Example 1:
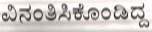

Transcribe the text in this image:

ವಿನಂತಿಸಿಕೊಂಡಿದ್ದ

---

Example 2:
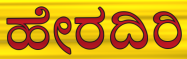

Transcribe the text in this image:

ಹೇರದಿರಿ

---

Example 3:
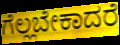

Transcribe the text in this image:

ಗೆಲ್ಲಬೇಕಾದರೆ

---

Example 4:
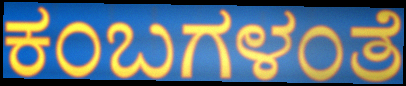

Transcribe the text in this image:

ಕಂಬಗಳಂತೆ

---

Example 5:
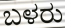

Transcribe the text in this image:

ಬಳರು